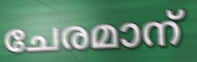
ചേരമാന്